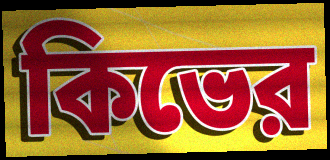
কিভের